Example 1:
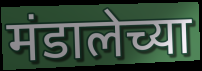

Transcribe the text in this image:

मंडालेच्या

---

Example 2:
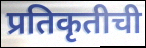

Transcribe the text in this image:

प्रतिकृतीची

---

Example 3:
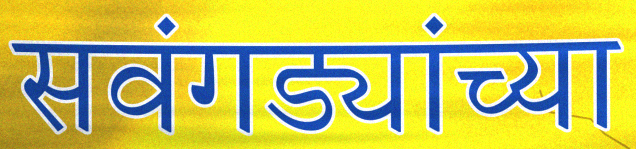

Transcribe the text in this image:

सवंगड्यांच्या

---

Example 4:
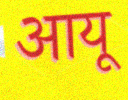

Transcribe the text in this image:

आयू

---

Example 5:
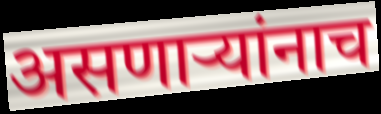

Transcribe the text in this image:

असणार्‍यांनाच